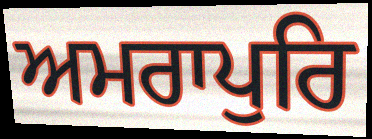
ਅਮਰਾਪੁਰਿ